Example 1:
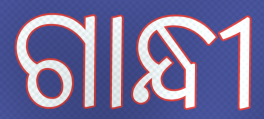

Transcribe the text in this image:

ଗାନ୍ଧୀ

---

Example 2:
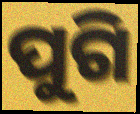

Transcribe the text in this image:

ପୁଗି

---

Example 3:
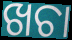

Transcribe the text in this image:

ଖଚା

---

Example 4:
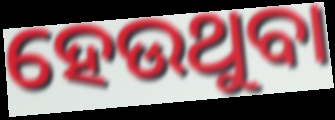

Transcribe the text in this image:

ହେଉଥୁବା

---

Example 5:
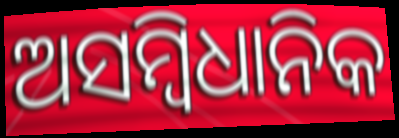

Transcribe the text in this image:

ଅସମ୍ବିଧାନିକ